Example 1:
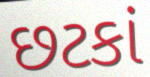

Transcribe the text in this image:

છટકાં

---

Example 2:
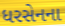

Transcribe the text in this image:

ધરસેનના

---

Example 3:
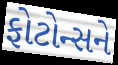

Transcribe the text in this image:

ફોટોન્સને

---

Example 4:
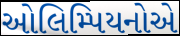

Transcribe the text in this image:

ઓલિમ્પિયનોએ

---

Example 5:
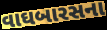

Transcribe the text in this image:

વાઘબારસના